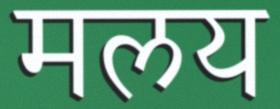
मलय